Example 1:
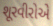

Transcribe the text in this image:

શૂરવીરોએ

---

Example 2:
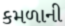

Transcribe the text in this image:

કમળાની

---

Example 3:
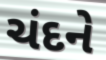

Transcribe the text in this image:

ચંદને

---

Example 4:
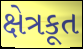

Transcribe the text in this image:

ક્ષેત્રકૂત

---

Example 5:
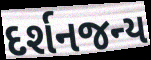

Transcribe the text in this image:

દર્શનજન્ય